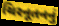
ચિરનૂતનનું